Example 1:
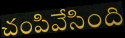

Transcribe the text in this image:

చంపివేసింది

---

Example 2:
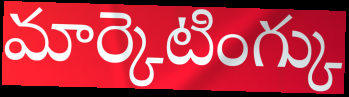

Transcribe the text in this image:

మార్కెటింగ్కు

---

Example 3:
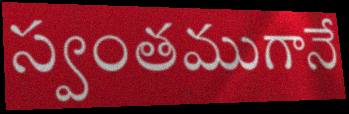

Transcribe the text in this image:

స్వంతముగానే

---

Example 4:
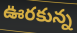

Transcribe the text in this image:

ఊరకున్న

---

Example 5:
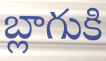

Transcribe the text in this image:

బ్లాగుకి